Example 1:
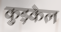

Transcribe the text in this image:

कुड़केल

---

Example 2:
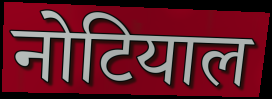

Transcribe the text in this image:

नोटियाल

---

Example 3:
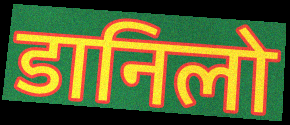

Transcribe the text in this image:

डानिलो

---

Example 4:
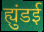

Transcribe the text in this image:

ह्युंडई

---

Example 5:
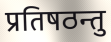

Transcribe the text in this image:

प्रतिषठन्तु